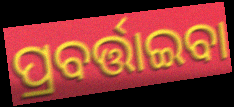
ପ୍ରବର୍ତ୍ତାଇବା